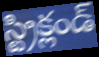
స్ట్రిక్లండ్